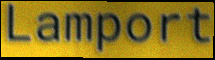
Lamport